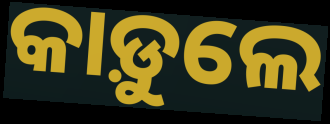
କାଡ଼ୁଲେ